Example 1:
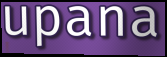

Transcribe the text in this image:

upana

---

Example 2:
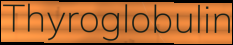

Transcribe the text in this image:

Thyroglobulin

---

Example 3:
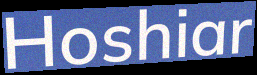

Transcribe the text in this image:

Hoshiar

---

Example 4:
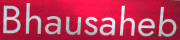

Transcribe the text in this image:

Bhausaheb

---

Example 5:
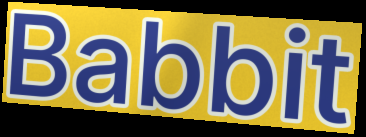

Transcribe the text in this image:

Babbit